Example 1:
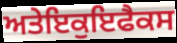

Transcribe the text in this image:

ਅਤੇਇਕੁਇਫੈਕਸ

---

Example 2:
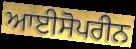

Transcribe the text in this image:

ਆਈਸੋਪਰੀਨ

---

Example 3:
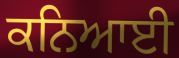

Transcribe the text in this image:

ਕਨਿਆਈ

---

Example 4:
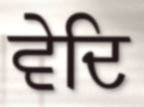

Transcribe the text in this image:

ਵੇਦਿ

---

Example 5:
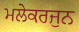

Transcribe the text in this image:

ਮਲੇਕਰਜੁਨ